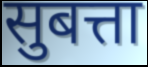
सुबत्ता